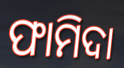
ଫାମିଦା